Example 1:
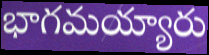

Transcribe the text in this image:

భాగమయ్యారు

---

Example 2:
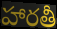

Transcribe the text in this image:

హారతీ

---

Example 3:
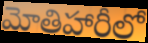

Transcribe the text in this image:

మోతిహారీలో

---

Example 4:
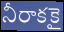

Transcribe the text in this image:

నీరాకకై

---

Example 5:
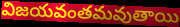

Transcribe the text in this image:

విజయవంతమవుతాయి